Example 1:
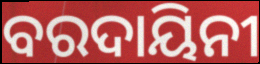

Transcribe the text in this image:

ବରଦାୟିନୀ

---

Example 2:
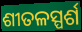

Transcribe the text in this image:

ଶୀତଳସ୍ପର୍ଶ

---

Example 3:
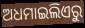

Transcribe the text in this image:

ଅଧମାଇଲିଏରୁ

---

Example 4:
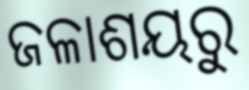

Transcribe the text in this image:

ଜଳାଶୟରୁ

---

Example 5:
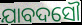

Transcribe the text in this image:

ଯାବଦସୌ